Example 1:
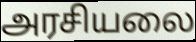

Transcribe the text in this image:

அரசியலை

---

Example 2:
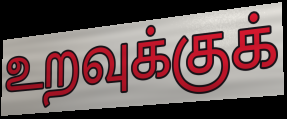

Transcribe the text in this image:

உறவுக்குக்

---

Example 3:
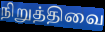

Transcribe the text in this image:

நிறுத்திவை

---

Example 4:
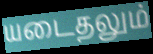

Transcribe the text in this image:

யடைதலும்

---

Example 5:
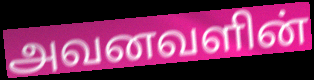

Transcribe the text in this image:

அவனவளின்